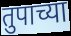
तुपाच्या